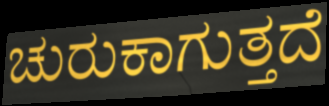
ಚುರುಕಾಗುತ್ತದೆ